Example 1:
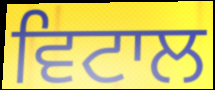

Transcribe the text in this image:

ਵਿਟਾਲ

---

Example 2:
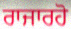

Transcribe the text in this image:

ਰਾਜਾਰਹੋ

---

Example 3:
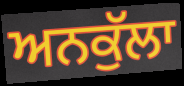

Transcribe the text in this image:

ਅਨਕੁੱਲਾ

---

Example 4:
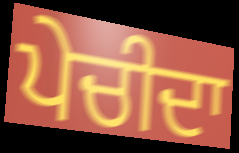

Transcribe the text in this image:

ਪੇਚੀਦਾ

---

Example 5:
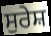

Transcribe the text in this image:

ਸੁਰੇਸ਼